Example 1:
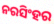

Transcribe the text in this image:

ନରସିଂହର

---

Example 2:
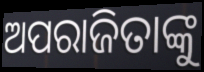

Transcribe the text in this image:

ଅପରାଜିତାଙ୍କୁ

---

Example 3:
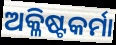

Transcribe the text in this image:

ଅକ୍ଳିଷ୍ଟକର୍ମା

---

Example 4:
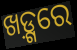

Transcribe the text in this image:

ଖଡ଼୍ଗରେ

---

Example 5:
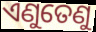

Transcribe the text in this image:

ଏଣୁତେଣୁ